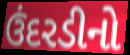
ઉંદરડીનો